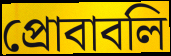
প্রোবাবলি